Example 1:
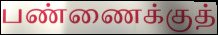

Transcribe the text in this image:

பண்ணைக்குத்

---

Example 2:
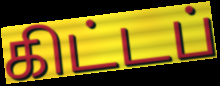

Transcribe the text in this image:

கிட்டப்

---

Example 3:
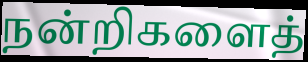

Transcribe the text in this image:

நன்றிகளைத்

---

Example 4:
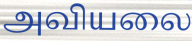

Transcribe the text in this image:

அவியலை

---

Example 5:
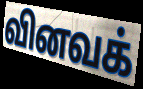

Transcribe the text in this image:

வினவக்